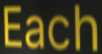
Each